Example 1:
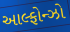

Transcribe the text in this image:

આલ્ફોન્ઝો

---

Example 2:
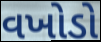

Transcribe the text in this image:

વખોડો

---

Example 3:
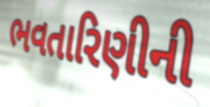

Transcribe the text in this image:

ભવતારિણીની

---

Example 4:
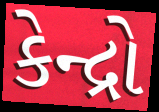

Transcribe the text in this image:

કેન્દ્રો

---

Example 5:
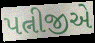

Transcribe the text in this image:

પત્નીજીએ